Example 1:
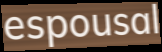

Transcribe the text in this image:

espousal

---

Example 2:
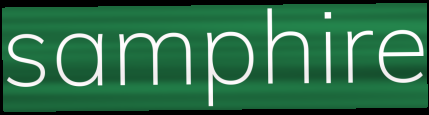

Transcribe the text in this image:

samphire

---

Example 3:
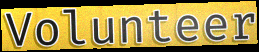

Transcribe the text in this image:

Volunteer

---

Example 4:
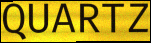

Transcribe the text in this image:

QUARTZ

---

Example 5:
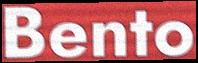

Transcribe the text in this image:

Bento